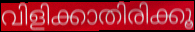
വിളിക്കാതിരിക്കൂ